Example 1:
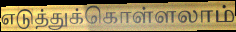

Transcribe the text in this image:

எடுத்துக்கொள்ளலாம்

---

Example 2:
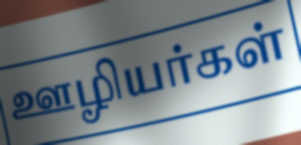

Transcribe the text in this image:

ஊழியர்கள்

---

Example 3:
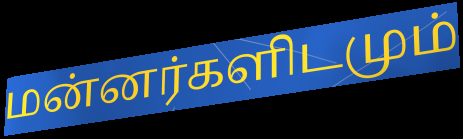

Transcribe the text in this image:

மன்னர்களிடமும்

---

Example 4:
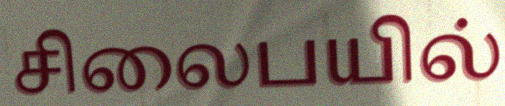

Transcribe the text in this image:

சிலைபயில்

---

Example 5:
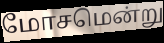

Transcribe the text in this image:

மோசமென்று